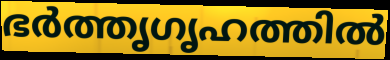
ഭർത്തൃഗൃഹത്തിൽ